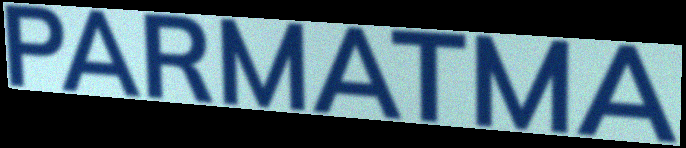
PARMATMA